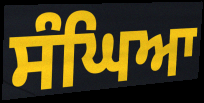
ਸੰਘਿਆ